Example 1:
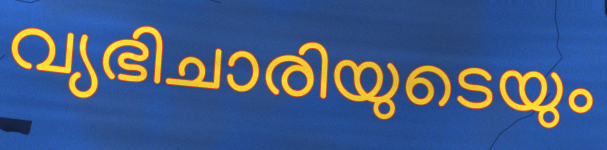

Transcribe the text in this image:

വ്യഭിചാരിയുടെയും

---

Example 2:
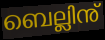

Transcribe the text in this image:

ബെല്ലിനു്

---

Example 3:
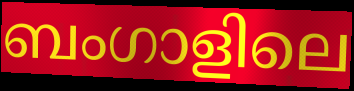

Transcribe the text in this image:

ബംഗാളിലെ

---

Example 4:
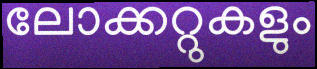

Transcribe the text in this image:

ലോക്കറ്റുകളും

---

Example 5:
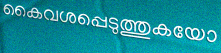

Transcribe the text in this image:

കൈവശപ്പെടുത്തുകയോ